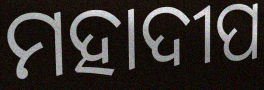
ମହାଦୀପ